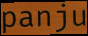
panju